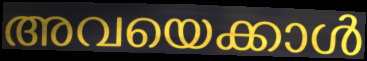
അവയെക്കാൾ